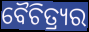
ବୈଚିତ୍ର୍ୟର